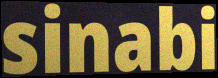
sinabi